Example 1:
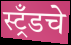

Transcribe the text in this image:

स्ट्रँडचे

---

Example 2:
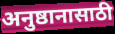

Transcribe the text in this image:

अनुष्ठानासाठी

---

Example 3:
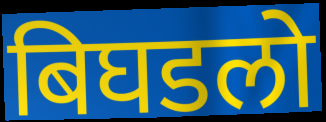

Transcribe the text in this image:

बिघडलो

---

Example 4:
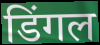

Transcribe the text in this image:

डिंगल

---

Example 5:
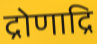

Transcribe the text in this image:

द्रोणाद्रि